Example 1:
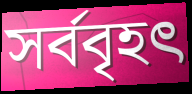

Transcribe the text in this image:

সর্ববৃহৎ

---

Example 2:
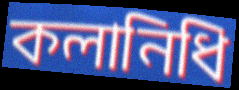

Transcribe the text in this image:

কলানিধি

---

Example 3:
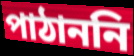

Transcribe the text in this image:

পাঠাননি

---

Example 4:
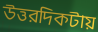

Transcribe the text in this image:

উত্তরদিকটায়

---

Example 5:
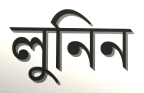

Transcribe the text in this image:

লুনিন